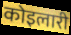
कोइलारी